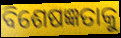
ବିଶେଷଜ୍ଞତାକୁ